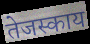
तेजस्काय